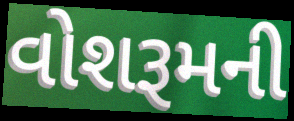
વોશરૂમની